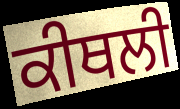
ਕੀਥਲੀ